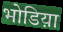
भोडिय़ा